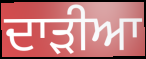
ਦਾੜੀਆ